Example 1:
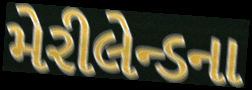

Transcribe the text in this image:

મેરીલેન્ડના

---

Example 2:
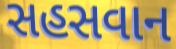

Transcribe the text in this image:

સહસવાન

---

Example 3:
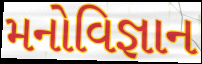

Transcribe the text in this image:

મનોવિજ્ઞાન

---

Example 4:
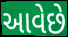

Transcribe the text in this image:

આવેછે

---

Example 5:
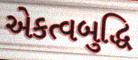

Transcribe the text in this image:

એકત્વબુદ્ધિ